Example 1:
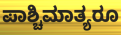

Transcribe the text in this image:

ಪಾಶ್ಚಿಮಾತ್ಯರೂ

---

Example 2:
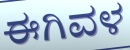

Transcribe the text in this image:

ಈಗಿವಳ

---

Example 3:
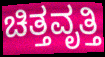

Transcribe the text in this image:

ಚಿತ್ತವೃತ್ತಿ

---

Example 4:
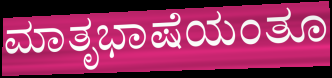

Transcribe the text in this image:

ಮಾತೃಭಾಷೆಯಂತೂ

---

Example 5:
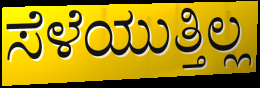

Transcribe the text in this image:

ಸೆಳೆಯುತ್ತಿಲ್ಲ